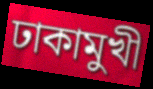
ঢাকামুখী